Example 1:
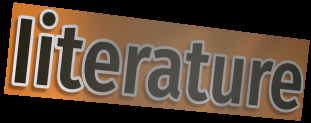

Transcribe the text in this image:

Iiterature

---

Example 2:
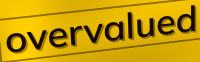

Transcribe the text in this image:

overvalued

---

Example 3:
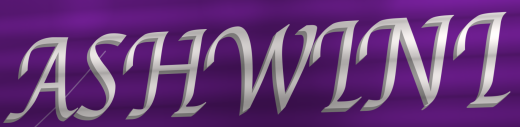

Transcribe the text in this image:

ASHWINI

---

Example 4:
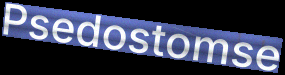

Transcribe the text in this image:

Psedostomse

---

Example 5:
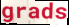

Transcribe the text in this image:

grads